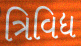
ત્રિવિદ્ય